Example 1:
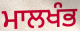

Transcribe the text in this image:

ਮਾਲਖੰਭ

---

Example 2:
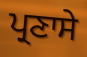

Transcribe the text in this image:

ਪ੍ਰਣਾਸੇ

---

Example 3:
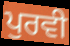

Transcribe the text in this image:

ਪੁਰਵੀ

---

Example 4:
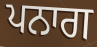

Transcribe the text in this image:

ਪਨਾਗ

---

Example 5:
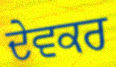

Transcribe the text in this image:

ਦੇਵਕਰ